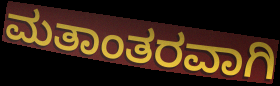
ಮತಾಂತರವಾಗಿ